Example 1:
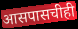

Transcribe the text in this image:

आसपासचीही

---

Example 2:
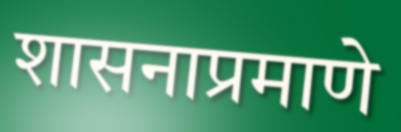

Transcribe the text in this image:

शासनाप्रमाणे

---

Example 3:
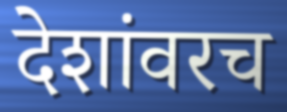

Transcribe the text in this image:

देशांवरच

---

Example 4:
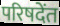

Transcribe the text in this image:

परिषदेंत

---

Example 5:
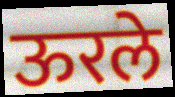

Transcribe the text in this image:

ऊरले